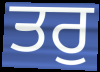
ਤਰੁ